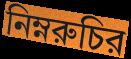
নিম্নরুচির